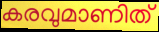
കരവുമാണിത്